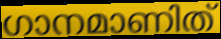
ഗാനമാണിത്